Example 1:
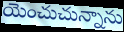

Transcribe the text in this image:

యెంచుచున్నాను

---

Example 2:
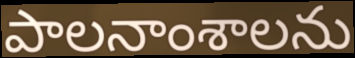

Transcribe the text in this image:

పాలనాంశాలను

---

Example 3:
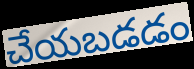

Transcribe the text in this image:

చేయబడడం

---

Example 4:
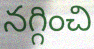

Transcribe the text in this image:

నగ్గించి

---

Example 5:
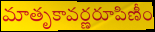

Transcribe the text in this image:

మాతృకావర్ణరూపిణీం